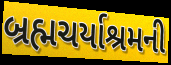
બ્રહ્મચર્યાશ્રમની